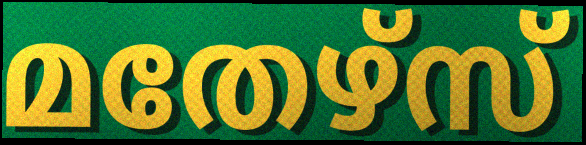
മതേഴ്സ്